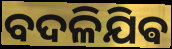
ବଦଳିଯିଵ